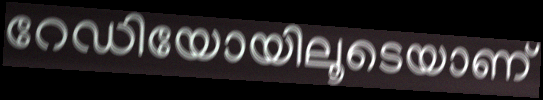
റേഡിയോയിലൂടെയാണ്